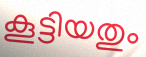
കൂട്ടിയതും